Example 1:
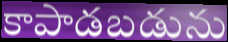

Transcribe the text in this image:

కాపాడబడును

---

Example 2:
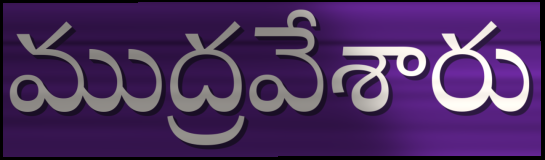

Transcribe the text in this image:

ముద్రవేశారు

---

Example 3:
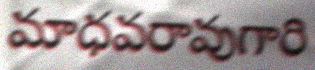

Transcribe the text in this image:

మాధవరావుగారి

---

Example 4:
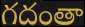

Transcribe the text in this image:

గదంతా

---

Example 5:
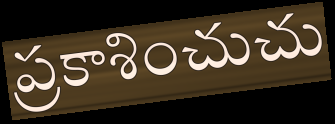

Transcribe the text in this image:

ప్రకాశించుచు